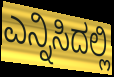
ಎನ್ನಿಸಿದಲ್ಲಿ